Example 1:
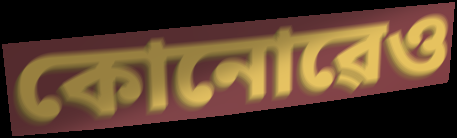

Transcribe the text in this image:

কোনোৱেও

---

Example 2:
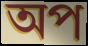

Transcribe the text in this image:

অপ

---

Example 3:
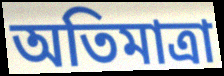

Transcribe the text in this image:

অতিমাত্ৰা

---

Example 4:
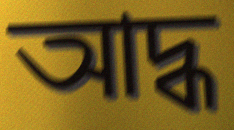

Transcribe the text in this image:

আদ্ধ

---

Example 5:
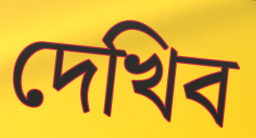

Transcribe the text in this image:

দেখিব